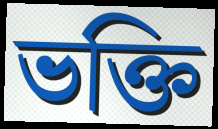
ভক্তি